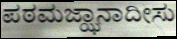
ಪಠಮಜ್ಝಾನಾದೀಸು